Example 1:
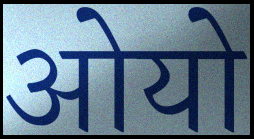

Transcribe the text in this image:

ओयो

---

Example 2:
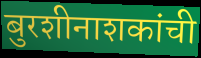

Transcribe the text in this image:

बुरशीनाशकांची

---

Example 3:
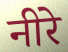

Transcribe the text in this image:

नीरे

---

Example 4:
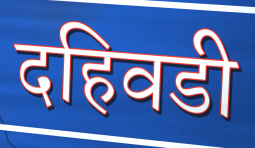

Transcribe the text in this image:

दहिवडी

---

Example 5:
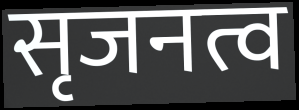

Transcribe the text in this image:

सृजनत्व